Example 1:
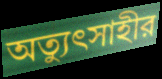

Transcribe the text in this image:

অত্যুৎসাহীর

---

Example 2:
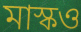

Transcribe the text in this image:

মাস্কও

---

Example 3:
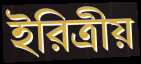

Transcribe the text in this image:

ইরিত্রীয়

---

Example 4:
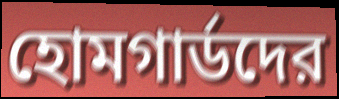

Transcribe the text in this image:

হোমগার্ডদের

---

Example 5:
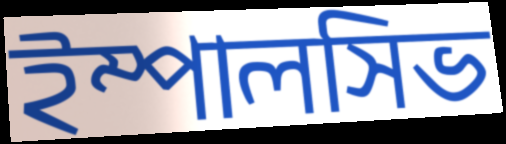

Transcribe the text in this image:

ইম্পালসিভ